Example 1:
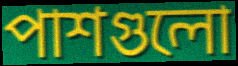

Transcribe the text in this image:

পাশগুলো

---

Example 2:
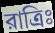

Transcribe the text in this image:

রাত্রিঃ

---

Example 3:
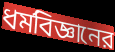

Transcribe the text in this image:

ধর্মবিজ্ঞানের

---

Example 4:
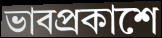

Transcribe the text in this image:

ভাবপ্রকাশে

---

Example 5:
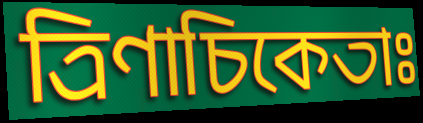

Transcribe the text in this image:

ত্রিণাচিকেতাঃ